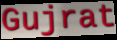
Gujrat